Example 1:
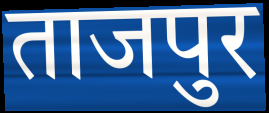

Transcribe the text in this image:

ताजपुर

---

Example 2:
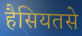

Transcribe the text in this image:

हैसियतसे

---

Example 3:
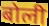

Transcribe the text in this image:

बोली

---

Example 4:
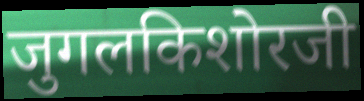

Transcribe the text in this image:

जुगलकिशोरजी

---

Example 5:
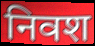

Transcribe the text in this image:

निवश